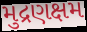
મુદ્રણક્ષમ